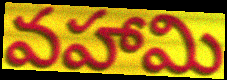
వహామి